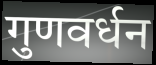
गुणवर्धन